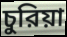
চুরিয়া